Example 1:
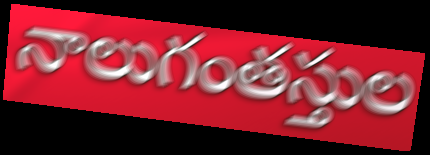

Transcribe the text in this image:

నాలుగంతస్తుల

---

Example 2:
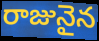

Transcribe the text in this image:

రాజునైన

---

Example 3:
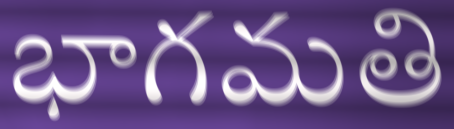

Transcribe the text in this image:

భాగమతి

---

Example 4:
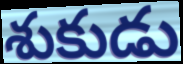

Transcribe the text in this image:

శుకుడు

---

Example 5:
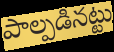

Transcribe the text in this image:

పాల్పడినట్టు